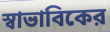
স্বাভাবিকের